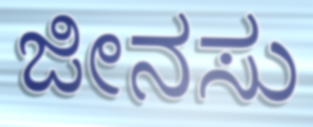
ಜೀನಸು